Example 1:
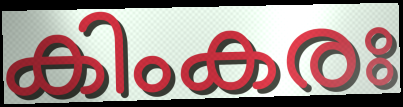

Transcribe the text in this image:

കിംകരഃ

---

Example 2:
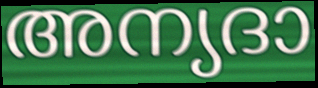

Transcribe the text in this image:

അന്യദാ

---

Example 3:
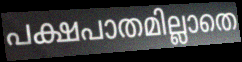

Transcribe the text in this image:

പക്ഷപാതമില്ലാതെ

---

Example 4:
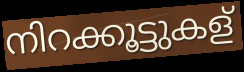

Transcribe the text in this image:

നിറക്കൂട്ടുകള്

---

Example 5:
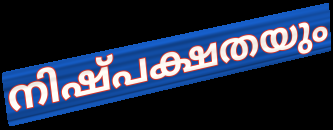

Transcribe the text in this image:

നിഷ്പക്ഷതയും